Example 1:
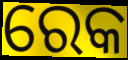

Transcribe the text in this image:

ରେକ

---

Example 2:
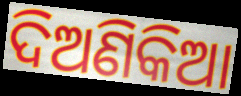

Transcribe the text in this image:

ଦିଅଣିକିଆ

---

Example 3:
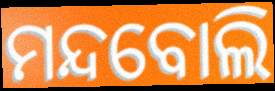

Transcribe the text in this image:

ମନ୍ଦବୋଲି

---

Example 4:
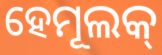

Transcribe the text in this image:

ହେମୂଲକ୍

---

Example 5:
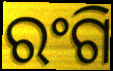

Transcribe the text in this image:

ରଂଗି